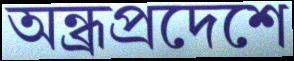
অন্ধ্রপ্রদেশে